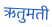
ऋतुमती